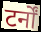
टर्नों